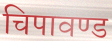
चिपावण्ड